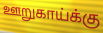
ஊறுகாய்க்கு